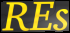
REs